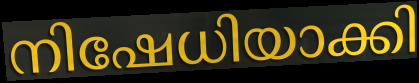
നിഷേധിയാക്കി